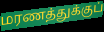
மரணத்துக்குப்